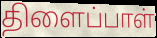
திளைப்பாள்